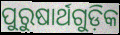
ପୁରୁଷାର୍ଥଗୁଡ଼ିକ